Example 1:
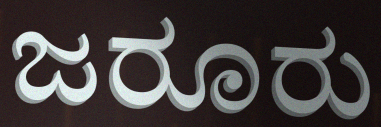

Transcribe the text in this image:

ಜರೂರು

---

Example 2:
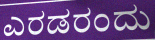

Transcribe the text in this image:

ಎರಡರಂದು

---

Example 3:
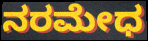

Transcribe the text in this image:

ನರಮೇಧ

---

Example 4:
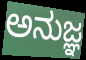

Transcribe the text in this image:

ಅನುಜ್ಞ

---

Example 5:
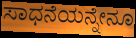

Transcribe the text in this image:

ಸಾಧನೆಯನ್ನೇನೂ